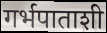
गर्भपाताशी